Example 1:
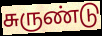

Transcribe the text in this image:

சுருண்டு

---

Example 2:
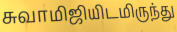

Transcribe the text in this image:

சுவாமிஜியிடமிருந்து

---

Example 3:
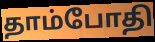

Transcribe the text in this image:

தாம்போதி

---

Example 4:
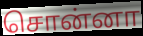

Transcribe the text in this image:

சொன்னா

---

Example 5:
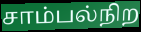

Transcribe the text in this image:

சாம்பல்நிற